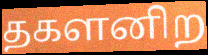
தகளனிற